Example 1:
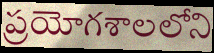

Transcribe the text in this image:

ప్రయోగశాలలోని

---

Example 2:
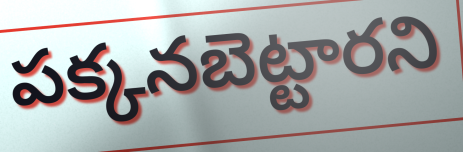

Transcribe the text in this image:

పక్కనబెట్టారని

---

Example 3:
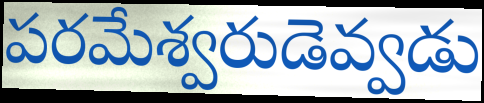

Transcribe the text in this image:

పరమేశ్వరుడెవ్వడు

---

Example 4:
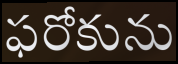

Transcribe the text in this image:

ఫరోకును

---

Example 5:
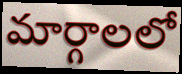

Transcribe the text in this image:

మార్గాలలో